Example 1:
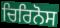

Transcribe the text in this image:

ਚਿਰਿਨੋਸ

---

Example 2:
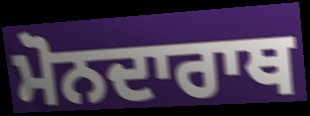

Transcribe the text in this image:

ਮੋਨਦਾਰਾਥ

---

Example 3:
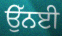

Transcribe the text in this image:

ਉੱਨਈ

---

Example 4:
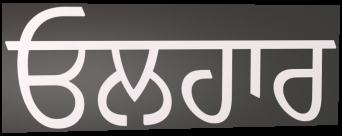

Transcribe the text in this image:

ਓਲਹਾਰ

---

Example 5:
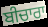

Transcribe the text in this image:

ਬੀਚਾਰਾ